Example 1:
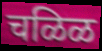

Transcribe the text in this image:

चळिळ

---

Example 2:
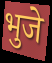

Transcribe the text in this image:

भुजे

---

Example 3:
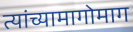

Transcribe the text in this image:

त्यांच्यामागोमाग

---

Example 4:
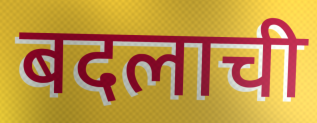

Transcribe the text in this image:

बदलाची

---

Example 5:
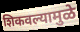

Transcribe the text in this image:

शिकवल्यामुळे